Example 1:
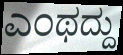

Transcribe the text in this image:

ಎಂಥದ್ದು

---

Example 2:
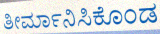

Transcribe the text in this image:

ತೀರ್ಮಾನಿಸಿಕೊಂಡ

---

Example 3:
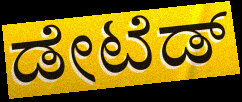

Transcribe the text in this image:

ಡೇಟೆಡ್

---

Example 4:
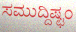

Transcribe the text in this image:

ಸಮುದ್ದಿಷ್ಟಂ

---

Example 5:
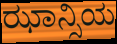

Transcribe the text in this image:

ಝಾನ್ಸಿಯ